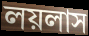
লয়লাস